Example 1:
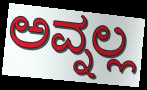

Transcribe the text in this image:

ಅವ್ನಲ್ಲ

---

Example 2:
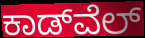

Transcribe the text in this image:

ಕಾಡ್‌ವೆಲ್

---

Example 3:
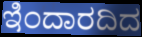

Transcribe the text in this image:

ಇಿಂದಾರದಿದ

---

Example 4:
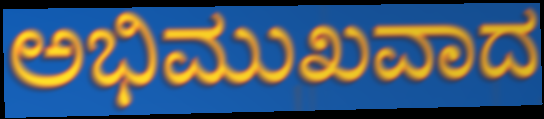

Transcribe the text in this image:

ಅಭಿಮುಖವಾದ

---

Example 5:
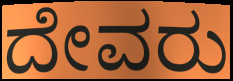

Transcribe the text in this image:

ದೇವರು